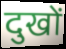
दुखों